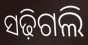
ସଢ଼ିଗଲି